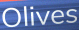
Olives